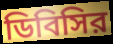
ডিবিসির